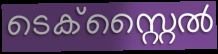
ടെക്സ്റ്റൈൽ